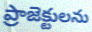
ప్రాజెక్టులను